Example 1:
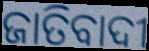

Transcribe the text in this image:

ଜାତିବାଦୀ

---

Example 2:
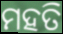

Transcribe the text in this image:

ମହତି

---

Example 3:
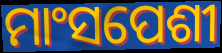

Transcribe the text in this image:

ମାଂସପେଶୀ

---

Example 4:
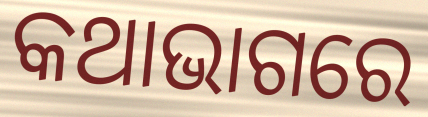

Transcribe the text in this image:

କଥାଭାଗରେ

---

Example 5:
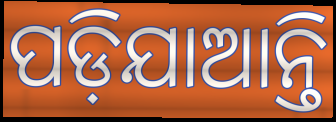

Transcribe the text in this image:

ପଡ଼ିଯାଆନ୍ତି